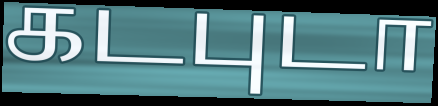
கடபுடா